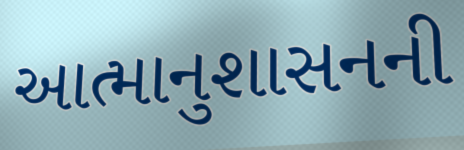
આત્માનુશાસનની